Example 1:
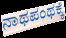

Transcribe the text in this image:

ನಾಥಪಂಥಕ್ಕೆ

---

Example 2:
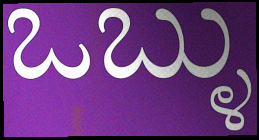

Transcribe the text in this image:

ಒಬ್ಳು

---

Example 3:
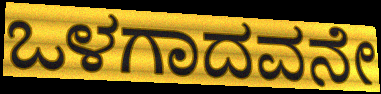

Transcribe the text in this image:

ಒಳಗಾದವನೇ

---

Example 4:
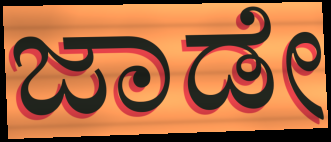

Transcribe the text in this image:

ಜಾಡೇ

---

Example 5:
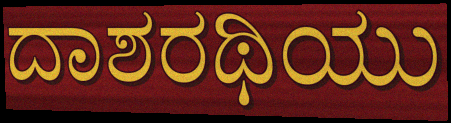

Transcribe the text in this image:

ದಾಶರಥಿಯು